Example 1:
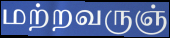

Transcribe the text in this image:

மற்றவருஞ்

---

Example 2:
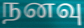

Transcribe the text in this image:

நனவு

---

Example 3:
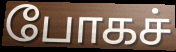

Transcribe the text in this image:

போகச்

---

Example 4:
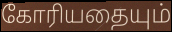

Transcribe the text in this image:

கோரியதையும்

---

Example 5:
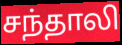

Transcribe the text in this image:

சந்தாலி